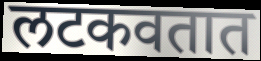
लटकवतात